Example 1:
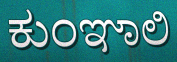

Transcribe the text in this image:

ಕುಂಞಾಲಿ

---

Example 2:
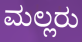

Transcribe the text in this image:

ಮಲ್ಲರು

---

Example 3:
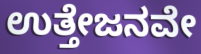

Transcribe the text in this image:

ಉತ್ತೇಜನವೇ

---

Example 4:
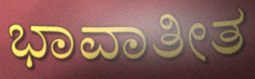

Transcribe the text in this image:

ಭಾವಾತೀತ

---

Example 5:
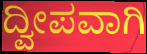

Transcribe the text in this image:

ದ್ವೀಪವಾಗಿ